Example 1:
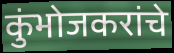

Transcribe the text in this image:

कुंभोजकरांचे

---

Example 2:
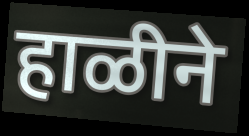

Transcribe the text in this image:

हाळीने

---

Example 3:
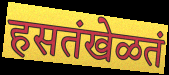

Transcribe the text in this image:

हसतंखेळतं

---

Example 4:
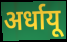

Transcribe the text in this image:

अर्धायू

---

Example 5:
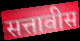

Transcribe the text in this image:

सत्तावीस